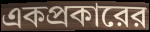
একপ্রকারের